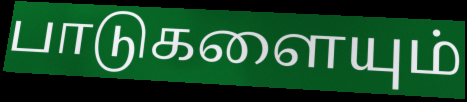
பாடுகளையும்